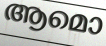
ആമൊ